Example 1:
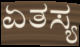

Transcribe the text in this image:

ಏತಸ್ಯ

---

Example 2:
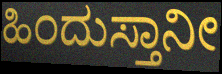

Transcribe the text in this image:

ಹಿಂದುಸ್ತಾನೀ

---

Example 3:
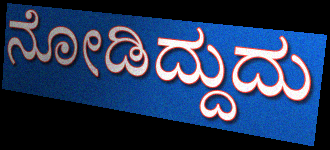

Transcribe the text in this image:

ನೋಡಿದ್ದುದು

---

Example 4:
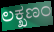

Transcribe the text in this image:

ಲಕ್ಖಣಂ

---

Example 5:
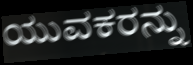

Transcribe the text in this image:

ಯುವಕರನ್ನು